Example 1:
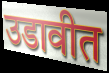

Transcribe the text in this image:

उडावीत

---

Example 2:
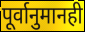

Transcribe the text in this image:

पूर्वानुमानही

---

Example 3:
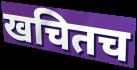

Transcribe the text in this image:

खचितच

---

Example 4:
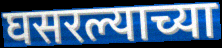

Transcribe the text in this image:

घसरल्याच्या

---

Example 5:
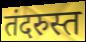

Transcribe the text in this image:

तंदरुस्त